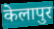
केलापुर